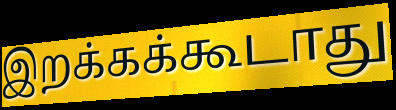
இறக்கக்கூடாது